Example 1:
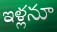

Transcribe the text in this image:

ఇళ్లనూ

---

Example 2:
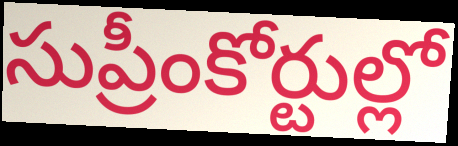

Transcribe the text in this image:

సుప్రీంకోర్టుల్లో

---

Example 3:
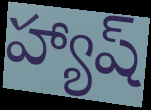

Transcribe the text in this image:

హ్యాష్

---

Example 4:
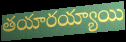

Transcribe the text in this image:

తయారయ్యాయి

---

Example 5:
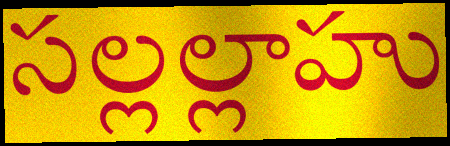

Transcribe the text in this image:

సల్లల్లాహు